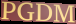
PGDM